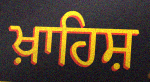
ਖ਼ਾਹਿਸ਼